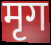
मृग